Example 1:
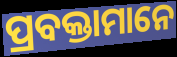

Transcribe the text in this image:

ପ୍ରବକ୍ତାମାନେ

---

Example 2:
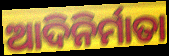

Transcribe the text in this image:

ଆଦିନିର୍ମାତା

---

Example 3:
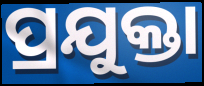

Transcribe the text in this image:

ପ୍ରଯୁକ୍ତା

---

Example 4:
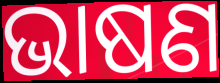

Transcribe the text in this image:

ଭାଷଣ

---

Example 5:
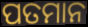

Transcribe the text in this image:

ପତମାନ